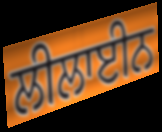
ਲੀਲਾਈਨ